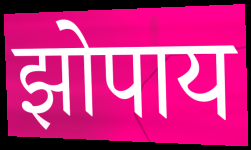
झोपाय